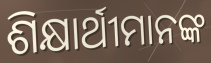
ଶିକ୍ଷାର୍ଥୀମାନଙ୍କ